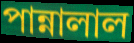
পান্নালাল